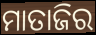
ମାତାଜିର